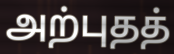
அற்புதத்